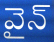
వైన్